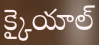
క్కైయాల్